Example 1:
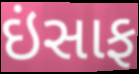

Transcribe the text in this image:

ઇંસાફ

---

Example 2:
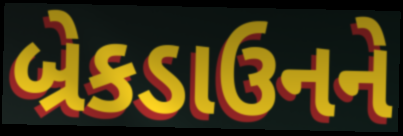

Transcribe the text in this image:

બ્રેકડાઉનને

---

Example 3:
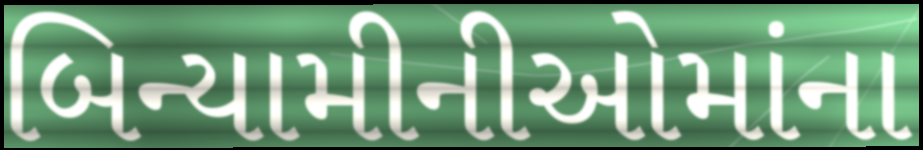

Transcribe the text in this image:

બિન્યામીનીઓમાંના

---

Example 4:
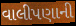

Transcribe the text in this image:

વાલીપણાની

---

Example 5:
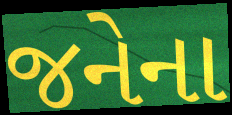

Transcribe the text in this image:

જનેના